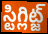
స్టిగ్లిట్జ్